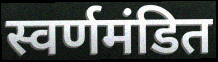
स्वर्णमंडित